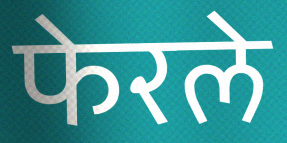
फेरले